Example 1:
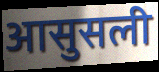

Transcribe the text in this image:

आसुसली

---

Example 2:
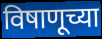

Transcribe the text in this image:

विषाणूच्या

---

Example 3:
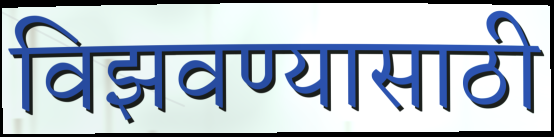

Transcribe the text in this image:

विझवण्यासाठी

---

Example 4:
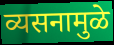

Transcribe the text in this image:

व्यसनामुळे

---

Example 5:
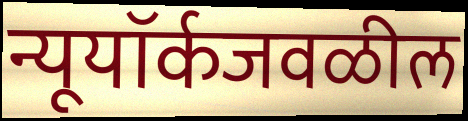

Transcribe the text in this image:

न्यूयॉर्कजवळील